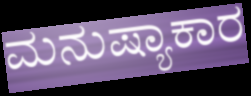
ಮನುಷ್ಯಾಕಾರ